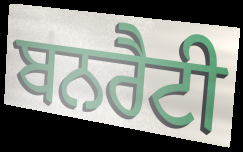
ਬਨਰੈਟੀ